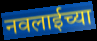
नवलाईच्या